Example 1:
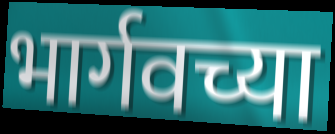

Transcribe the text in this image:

भार्गवच्या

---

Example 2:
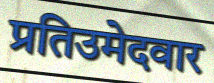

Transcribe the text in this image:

प्रतिउमेदवार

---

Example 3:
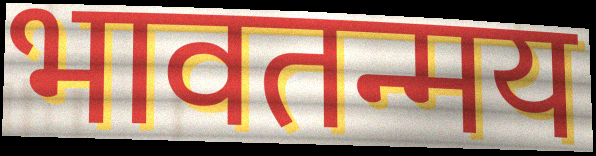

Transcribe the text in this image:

भावतन्मय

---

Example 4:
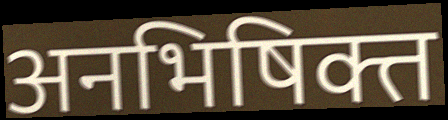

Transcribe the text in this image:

अनभिषिक्त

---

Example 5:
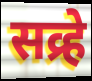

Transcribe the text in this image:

सव्र्हे